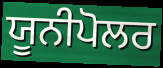
ਯੂਨੀਪੋਲਰ